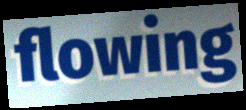
flowing